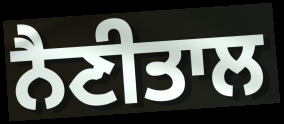
ਨੈਣੀਤਾਲ